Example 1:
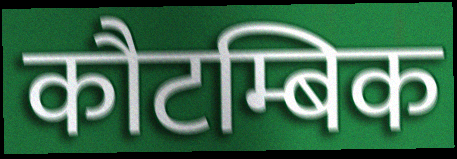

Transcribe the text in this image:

कौटम्बिक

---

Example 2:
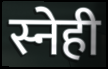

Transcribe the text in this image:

स्नेही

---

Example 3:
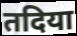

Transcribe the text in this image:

तदिया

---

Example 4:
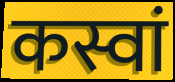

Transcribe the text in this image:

कस्वां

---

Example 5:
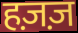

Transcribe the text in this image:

हज़ज़